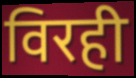
विरही